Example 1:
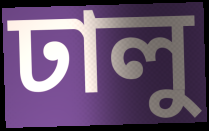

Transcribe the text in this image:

ঢালু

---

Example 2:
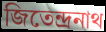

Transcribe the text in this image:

জিতেন্দ্রনাথ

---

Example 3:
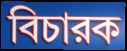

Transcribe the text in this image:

বিচারক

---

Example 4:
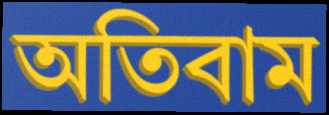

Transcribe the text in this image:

অতিবাম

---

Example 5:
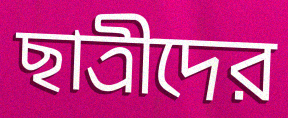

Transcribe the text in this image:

ছাত্রীদের